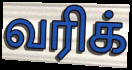
வரிக்